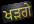
ਖੜਗੇ